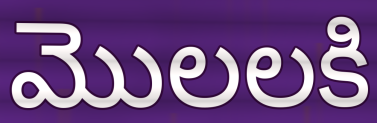
మొలలకి